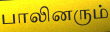
பாலினரும்